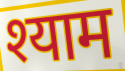
श्‍याम